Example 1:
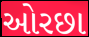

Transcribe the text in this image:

ઓરછા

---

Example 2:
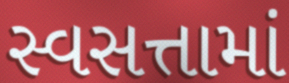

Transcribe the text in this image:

સ્વસત્તામાં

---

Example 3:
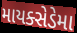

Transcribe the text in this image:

માયક્સેડેમા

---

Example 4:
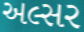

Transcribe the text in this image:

અલ્સર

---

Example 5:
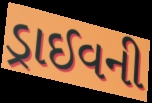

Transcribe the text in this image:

ડ્રાઈવની